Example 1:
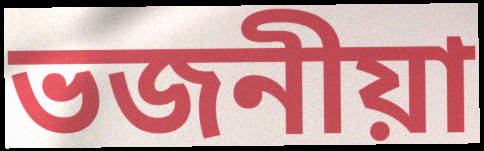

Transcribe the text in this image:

ভজনীয়া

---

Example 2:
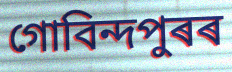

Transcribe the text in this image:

গোবিন্দপুৰৰ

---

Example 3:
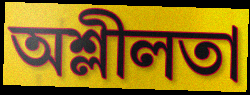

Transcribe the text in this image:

অশ্লীলতা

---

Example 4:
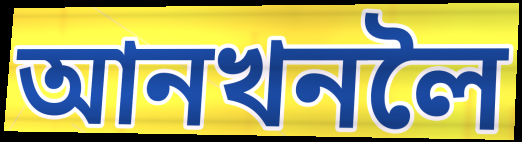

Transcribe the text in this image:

আনখনলৈ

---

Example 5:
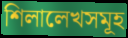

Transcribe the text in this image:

শিলালেখসমূহ